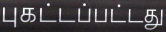
புகட்டப்பட்டது